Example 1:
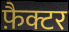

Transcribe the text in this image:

फ़ैक्टर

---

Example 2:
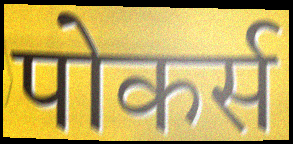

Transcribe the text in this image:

पोकर्स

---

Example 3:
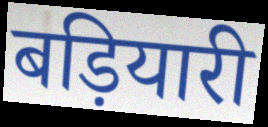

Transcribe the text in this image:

बड़ियारी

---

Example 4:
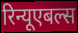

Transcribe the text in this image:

रिन्यूएबल्स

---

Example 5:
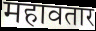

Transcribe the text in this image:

महावतार